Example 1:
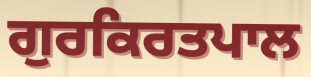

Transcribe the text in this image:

ਗੁਰਕਿਰਤਪਾਲ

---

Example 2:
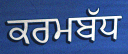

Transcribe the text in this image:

ਕਰਮਬੱਧ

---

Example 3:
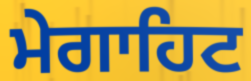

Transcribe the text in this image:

ਮੇਗਾਹਿਟ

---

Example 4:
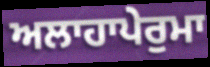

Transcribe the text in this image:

ਅਲਾਹਾਪੇਰੁਮਾ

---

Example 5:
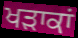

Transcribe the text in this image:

ਖੜਾਕਾਂ